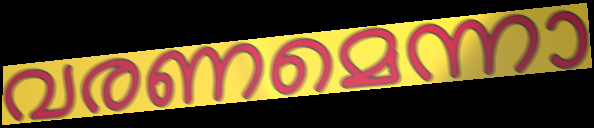
വരണമെന്നാ